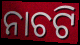
ନାଚଟି